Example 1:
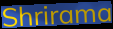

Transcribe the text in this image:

Shrirama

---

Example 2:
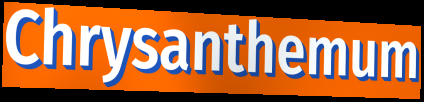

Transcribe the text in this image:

Chrysanthemum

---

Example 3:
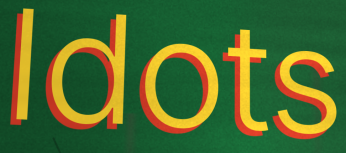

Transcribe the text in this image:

ldots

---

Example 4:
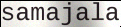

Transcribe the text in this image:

samajala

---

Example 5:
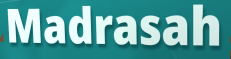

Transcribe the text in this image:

Madrasah